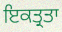
ਇਕਤ੍ਰਤਾ